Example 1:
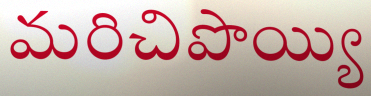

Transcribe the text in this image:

మరిచిపొయ్యి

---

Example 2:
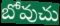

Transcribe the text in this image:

బోవుచు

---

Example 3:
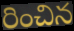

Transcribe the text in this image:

రించిన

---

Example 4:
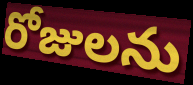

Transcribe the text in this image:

రోజులను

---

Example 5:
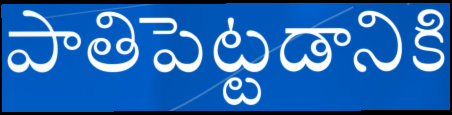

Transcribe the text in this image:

పాతిపెట్టడానికి